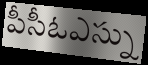
పీసీఓఎస్ను